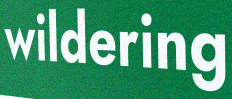
wildering